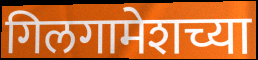
गिलगामेशच्या